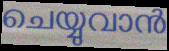
ചെയ്യുവാൻ